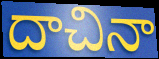
దాచినా